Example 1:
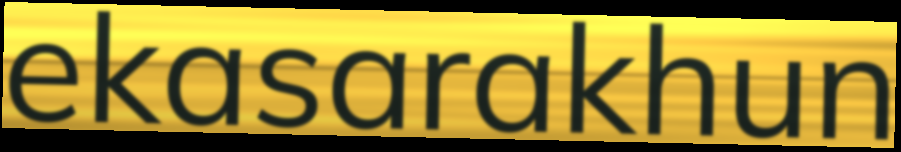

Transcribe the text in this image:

ekasarakhun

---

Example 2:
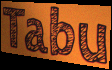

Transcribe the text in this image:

Tabu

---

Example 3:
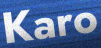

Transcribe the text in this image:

Karo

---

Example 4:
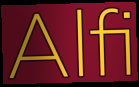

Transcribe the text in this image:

Alfi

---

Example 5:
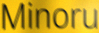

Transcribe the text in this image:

Minoru